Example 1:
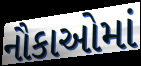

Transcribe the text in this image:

નૌકાઓમાં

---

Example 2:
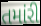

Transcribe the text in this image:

તમાંરી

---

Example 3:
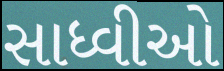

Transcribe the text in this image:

સાધ્વીઓ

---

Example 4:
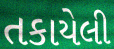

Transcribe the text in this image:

તકાયેલી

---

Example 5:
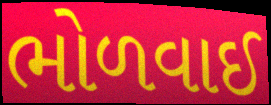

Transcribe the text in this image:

ભોળવાઈ